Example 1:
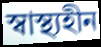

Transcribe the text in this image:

স্বাস্থ্যহীন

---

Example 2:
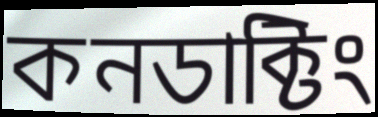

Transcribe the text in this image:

কনডাক্টিং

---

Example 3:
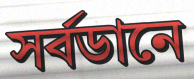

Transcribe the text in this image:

সর্বডানে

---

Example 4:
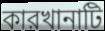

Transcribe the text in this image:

কারখানাটি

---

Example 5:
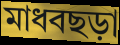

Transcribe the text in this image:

মাধবছড়া